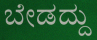
ಬೇಡದ್ದು